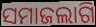
ସମାଜଲାଗି